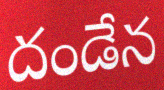
దండేన